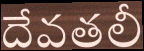
దేవతలీ